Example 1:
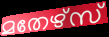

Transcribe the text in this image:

മതേഴ്സ്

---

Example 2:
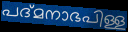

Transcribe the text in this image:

പദ്മനാഭപിള്ള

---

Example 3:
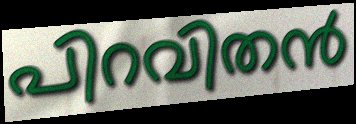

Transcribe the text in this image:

പിറവിതൻ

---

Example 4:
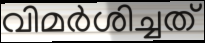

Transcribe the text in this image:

വിമർശിച്ചത്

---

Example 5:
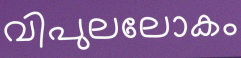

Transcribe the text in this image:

വിപുലലോകം